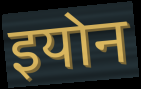
इयोन